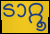
ടാറ്റൂ